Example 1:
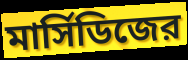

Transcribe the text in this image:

মার্সিডিজের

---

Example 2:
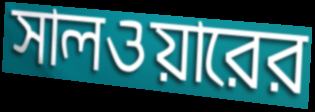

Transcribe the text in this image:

সালওয়ারের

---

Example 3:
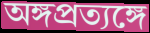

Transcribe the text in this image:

অঙ্গপ্রত্যঙ্গে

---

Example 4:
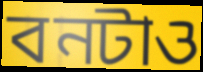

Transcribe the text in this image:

বনটাও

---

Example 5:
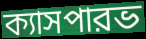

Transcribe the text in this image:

ক্যাসপারভ